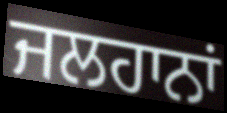
ਜਲਹਾਨਾਂ